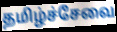
தமிழ்ச்சேவை